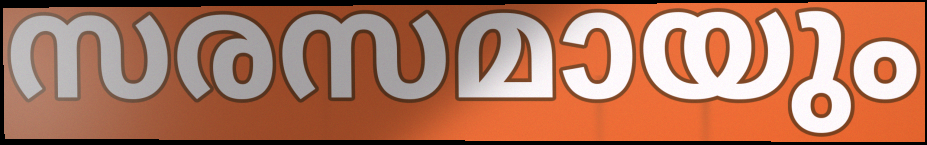
സരസമായും